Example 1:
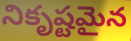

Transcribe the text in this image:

నికృష్టమైన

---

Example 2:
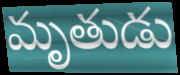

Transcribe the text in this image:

మృతుడు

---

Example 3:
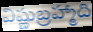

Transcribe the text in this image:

విష్ణుబ్రహ్మాది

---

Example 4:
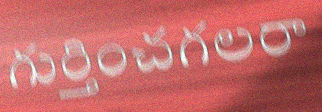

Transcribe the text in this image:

గుర్తించగలరా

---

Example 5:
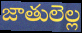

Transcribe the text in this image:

జాతులెల్ల